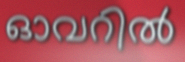
ഓവറിൽ